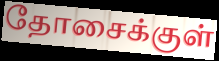
தோசைக்குள்